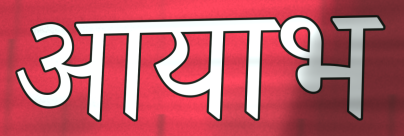
आयाभ